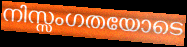
നിസ്സംഗതയോടെ